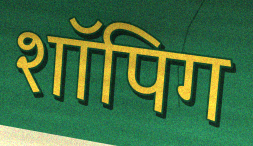
शॉपिग